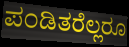
ಪಂಡಿತರೆಲ್ಲರೂ